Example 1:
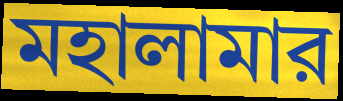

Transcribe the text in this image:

মহালামার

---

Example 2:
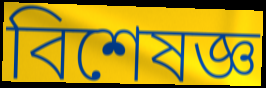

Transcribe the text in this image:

বিশেষজ্ঞ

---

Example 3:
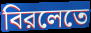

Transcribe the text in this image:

বিরলেতে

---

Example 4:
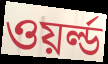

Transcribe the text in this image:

ওয়র্ল্ড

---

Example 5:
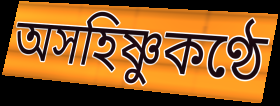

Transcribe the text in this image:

অসহিষ্ণুকণ্ঠে